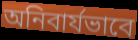
অনিবার্যভাবে